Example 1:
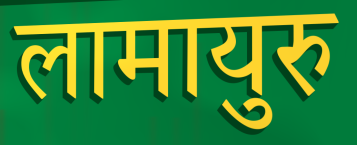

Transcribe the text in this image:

लामायुरु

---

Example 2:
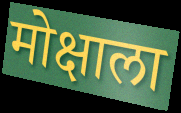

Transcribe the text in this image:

मोक्षाला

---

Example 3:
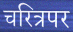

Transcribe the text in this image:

चरित्रपर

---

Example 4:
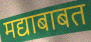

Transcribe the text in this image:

मद्याबाबत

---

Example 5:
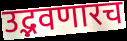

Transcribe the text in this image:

उद्भवणारच